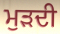
ਮੁੜਦੀ